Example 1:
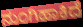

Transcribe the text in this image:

ನುಂಗಿಹಾಕಿದೆ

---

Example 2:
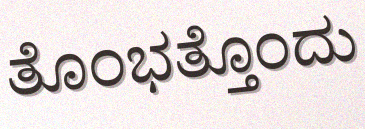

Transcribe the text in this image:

ತೊಂಭತ್ತೊಂದು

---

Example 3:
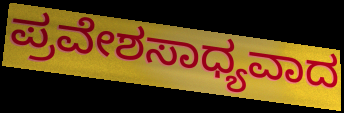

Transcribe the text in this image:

ಪ್ರವೇಶಸಾಧ್ಯವಾದ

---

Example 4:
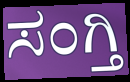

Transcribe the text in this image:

ಸಂಗ್ತಿ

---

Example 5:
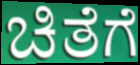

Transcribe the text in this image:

ಚಿತೆಗೆ